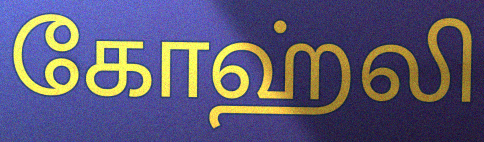
கோஹ்லி